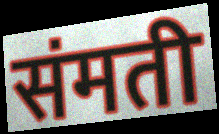
संमती